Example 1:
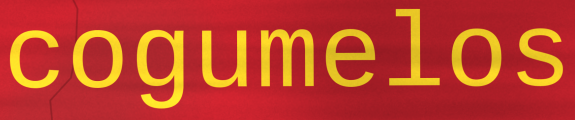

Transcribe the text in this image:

cogumelos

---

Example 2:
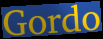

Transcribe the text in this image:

Gordo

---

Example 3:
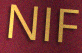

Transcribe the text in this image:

NIF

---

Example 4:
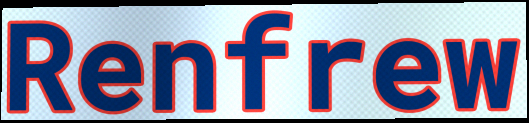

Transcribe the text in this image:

Renfrew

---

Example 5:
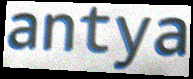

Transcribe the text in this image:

antya